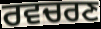
ਰਵਚਰਣ